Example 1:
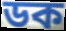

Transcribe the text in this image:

ডক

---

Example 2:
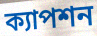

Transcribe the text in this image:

ক্যাপশন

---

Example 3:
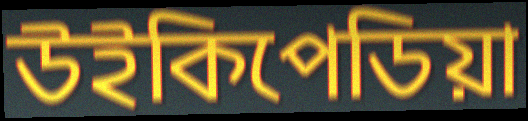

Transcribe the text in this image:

উইকিপেডিয়া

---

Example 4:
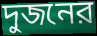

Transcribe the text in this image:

দুজনের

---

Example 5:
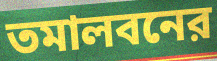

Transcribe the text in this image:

তমালবনের